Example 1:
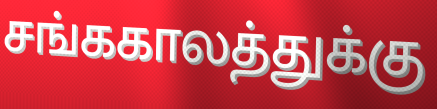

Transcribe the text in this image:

சங்ககாலத்துக்கு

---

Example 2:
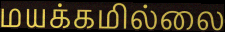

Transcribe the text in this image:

மயக்கமில்லை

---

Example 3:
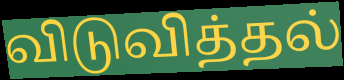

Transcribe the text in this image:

விடுவித்தல்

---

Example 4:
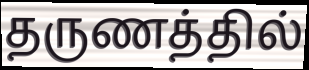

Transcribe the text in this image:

தருணத்தில்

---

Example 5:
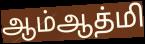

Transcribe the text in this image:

ஆம்ஆத்மி